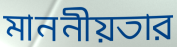
মাননীয়তার